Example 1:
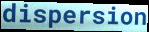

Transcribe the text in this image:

dispersion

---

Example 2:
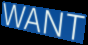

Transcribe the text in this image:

WANT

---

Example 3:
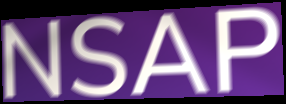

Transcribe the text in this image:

NSAP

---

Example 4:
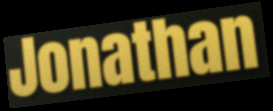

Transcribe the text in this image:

Jonathan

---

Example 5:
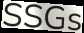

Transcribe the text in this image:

SSGs